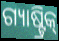
ଗ୍ୟାଷ୍ଟ୍ରିକ୍